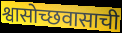
श्वासोच्छवासाची